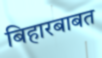
बिहारबाबत